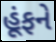
હૂંફને